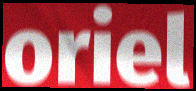
oriel